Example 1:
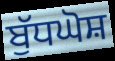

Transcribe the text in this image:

ਬੁੱਧਘੋਸ਼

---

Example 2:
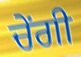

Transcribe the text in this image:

ਚੇਂਗੀ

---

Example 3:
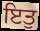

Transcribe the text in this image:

ਇਤੁ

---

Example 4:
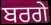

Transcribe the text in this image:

ਬਰਗੇ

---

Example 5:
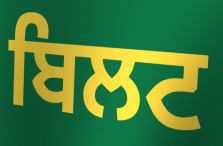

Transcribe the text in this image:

ਬਿਲਟ